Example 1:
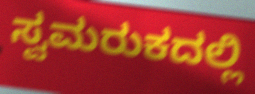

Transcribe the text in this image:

ಸ್ವಮರುಕದಲ್ಲಿ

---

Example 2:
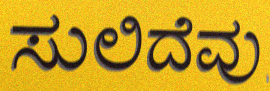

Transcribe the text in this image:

ಸುಲಿದೆವು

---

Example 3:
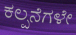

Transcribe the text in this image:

ಕಲ್ಪನೆಗಳೇ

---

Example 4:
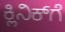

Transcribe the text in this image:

ಕ್ಲಿನಿಕ್‍ಗೆ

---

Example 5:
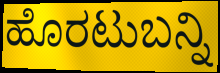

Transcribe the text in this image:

ಹೊರಟುಬನ್ನಿ